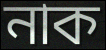
নাক